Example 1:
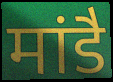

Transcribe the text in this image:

मांडै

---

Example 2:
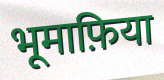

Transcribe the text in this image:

भूमाफ़िया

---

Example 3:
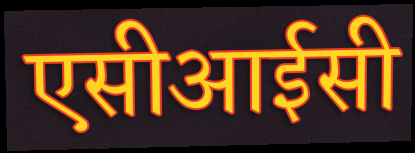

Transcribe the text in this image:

एसीआईसी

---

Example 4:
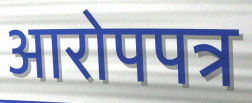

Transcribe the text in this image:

आरोपपत्र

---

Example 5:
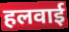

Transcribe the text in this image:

हलवाई